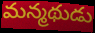
మన్మథుడు